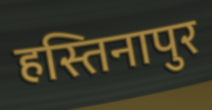
हस्तिनापुर